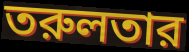
তরুলতার